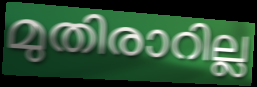
മുതിരാറില്ല